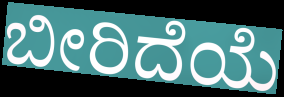
ಬೀರಿದೆಯೆ